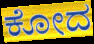
ಕೋದ